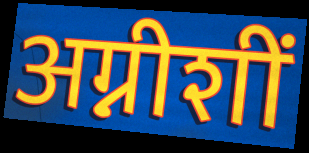
अग्नीशीं